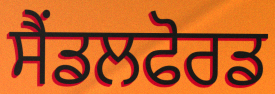
ਸੈਂਡਲਫੋਰਡ